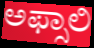
ಅಫ್ಸಾಲಿ